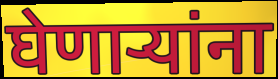
घेणाऱ्यांना